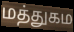
மத்துகம